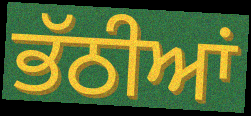
ਭੱਠੀਆਂ